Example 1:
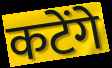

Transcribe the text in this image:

कटेंगे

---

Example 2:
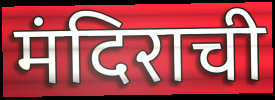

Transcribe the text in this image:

मंदिराची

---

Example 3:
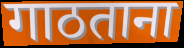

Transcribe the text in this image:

गाठताना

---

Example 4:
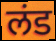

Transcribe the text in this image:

लंड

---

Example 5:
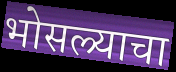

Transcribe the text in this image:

भोसल्याचा